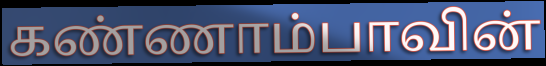
கண்ணாம்பாவின்